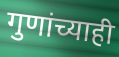
गुणांच्याही